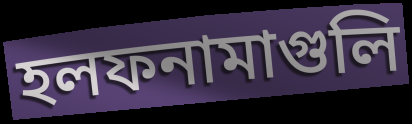
হলফনামাগুলি